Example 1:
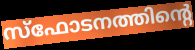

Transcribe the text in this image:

സ്ഫോടനത്തിന്റെ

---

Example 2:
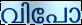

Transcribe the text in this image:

വിപോ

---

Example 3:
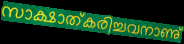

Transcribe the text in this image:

സാക്ഷാത്കരിച്ചവനാണു്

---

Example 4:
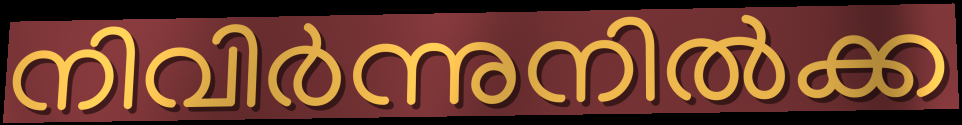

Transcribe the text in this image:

നിവിർന്നുനിൽക്ക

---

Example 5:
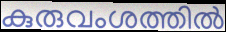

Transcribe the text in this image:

കുരുവംശത്തിൽ